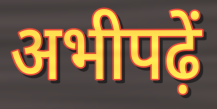
अभीपढ़ें